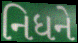
નિધને